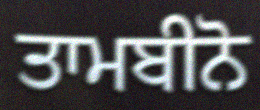
ਤਾਮਬੀਨੋ